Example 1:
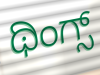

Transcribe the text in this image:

ಥಿಂಗ್ಸ್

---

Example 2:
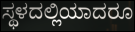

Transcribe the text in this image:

ಸ್ಥಳದಲ್ಲಿಯಾದರೂ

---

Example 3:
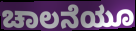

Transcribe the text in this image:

ಚಾಲನೆಯೂ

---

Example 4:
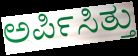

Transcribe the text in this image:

ಅರ್ಪಿಸಿತ್ತು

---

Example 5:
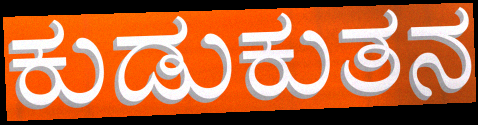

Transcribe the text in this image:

ಕುಡುಕುತನ